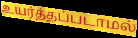
உயர்த்தப்படாமல்